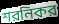
শরনিকর